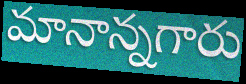
మానాన్నగారు